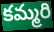
కమ్మరి